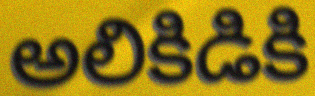
అలికిడికి